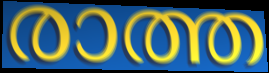
രാത്ത